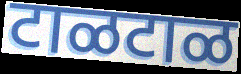
टाळटाळ